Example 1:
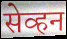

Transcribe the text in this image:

सेव्हन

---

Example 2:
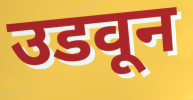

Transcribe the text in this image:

उडवून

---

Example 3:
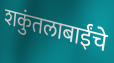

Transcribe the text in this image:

शकुंतलाबाईंचे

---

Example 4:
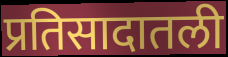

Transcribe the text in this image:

प्रतिसादातली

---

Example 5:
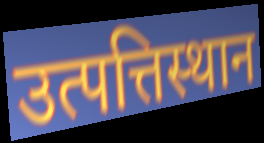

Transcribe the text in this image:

उत्पत्तिस्थान